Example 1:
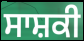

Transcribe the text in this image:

ਸਾਸ਼ਕੀ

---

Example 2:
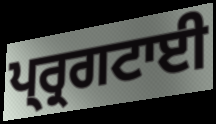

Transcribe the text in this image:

ਪ੍ਰ੍ਰਗਟਾਈ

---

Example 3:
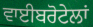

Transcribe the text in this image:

ਵਾਈਬਰੋਟੇਲਾਂ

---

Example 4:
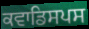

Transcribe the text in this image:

ਕਵਾਡਿਸਪਸ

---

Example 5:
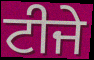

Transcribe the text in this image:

ਟੀਜੇ